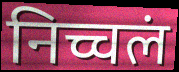
निच्चलं